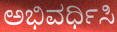
ಅಭಿವರ್ಧಿಸಿ